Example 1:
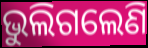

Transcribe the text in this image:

ଭୁଲିଗଲେଣି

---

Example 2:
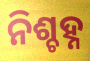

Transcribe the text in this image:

ନିଶ୍ଚହ୍ନ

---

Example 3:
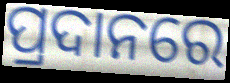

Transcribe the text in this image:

ପ୍ରଦାନରେ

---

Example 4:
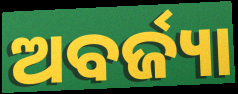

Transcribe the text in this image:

ଅବର୍ଜ୍ୟା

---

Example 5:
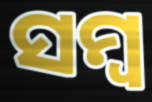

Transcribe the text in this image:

ସମ୍ବ